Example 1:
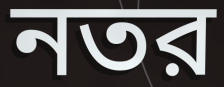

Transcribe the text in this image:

নতর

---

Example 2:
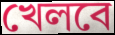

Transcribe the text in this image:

খেলবে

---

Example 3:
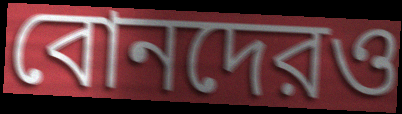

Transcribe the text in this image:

বোনদেরও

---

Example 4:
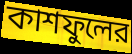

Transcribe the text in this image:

কাশফুলের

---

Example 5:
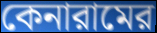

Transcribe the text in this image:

কেনারামের